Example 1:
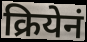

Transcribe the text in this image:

क्रियेनं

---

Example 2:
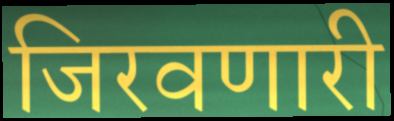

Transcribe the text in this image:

जिरवणारी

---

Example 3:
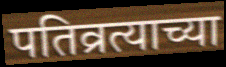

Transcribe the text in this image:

पतिव्रत्याच्या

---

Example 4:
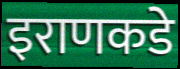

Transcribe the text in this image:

इराणकडे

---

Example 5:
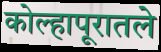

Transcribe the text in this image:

कोल्हापूरातले